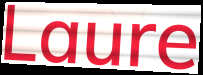
Laure